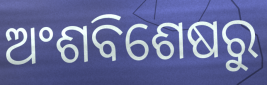
ଅଂଶବିଶେଷରୁ